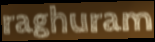
raghuram